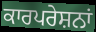
ਕਾਰਪਰੇਸ਼ਨਾਂ